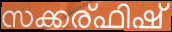
സക്കര്ഫിഷ്